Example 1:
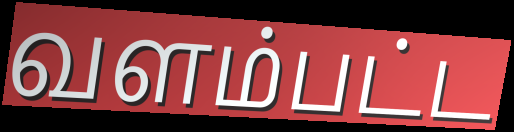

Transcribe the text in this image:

வளம்பட்ட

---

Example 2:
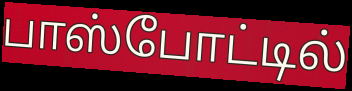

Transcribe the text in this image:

பாஸ்போட்டில்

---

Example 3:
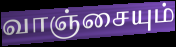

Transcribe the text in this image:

வாஞ்சையும்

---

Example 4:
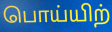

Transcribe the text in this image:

பொய்யிற்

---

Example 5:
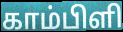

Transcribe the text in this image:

காம்பிளி